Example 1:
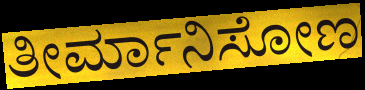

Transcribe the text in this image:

ತೀರ್ಮಾನಿಸೋಣ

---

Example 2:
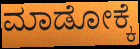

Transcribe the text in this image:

ಮಾಡೋಕ್ಕೆ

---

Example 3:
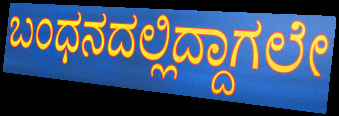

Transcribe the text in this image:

ಬಂಧನದಲ್ಲಿದ್ದಾಗಲೇ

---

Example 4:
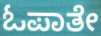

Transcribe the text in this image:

ಓಪಾತೇ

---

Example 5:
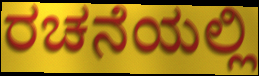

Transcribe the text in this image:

ರಚನೆಯಲ್ಲಿ